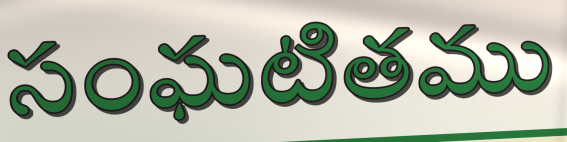
సంఘటితము